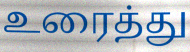
உரைத்து